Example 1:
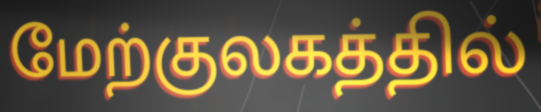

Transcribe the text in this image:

மேற்குலகத்தில்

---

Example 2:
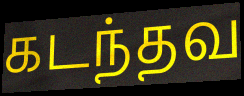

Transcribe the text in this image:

கடந்தவ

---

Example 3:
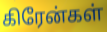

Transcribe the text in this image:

கிரேன்கள்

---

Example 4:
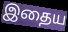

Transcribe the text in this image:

இதைய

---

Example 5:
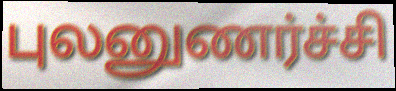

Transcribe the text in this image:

புலனுணர்ச்சி